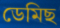
ডেমিছ